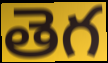
తెగ